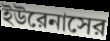
ইউরেনাসের